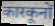
कारकूनों